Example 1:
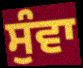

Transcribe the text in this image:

ਸੁੰਵਾ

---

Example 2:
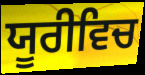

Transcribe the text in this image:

ਯੂਰੀਵਿਚ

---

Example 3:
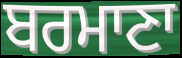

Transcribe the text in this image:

ਬਰਮਾਣਾ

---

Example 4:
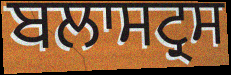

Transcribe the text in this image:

ਬਲਾਸਟ੍ਰਸ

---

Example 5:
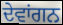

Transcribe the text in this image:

ਦੇਵਾਂਗਨ